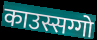
काउस्सग्गो